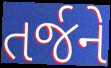
તર્જને